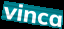
vinca